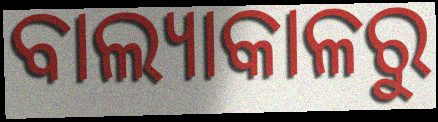
ବାଲ୍ୟାକାଳରୁ